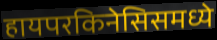
हायपरकिनेसिसमध्ये